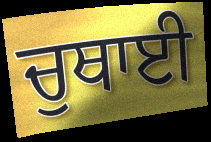
ਚੁਥਾਈ